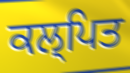
ਕਲ੍ਪਿਤ